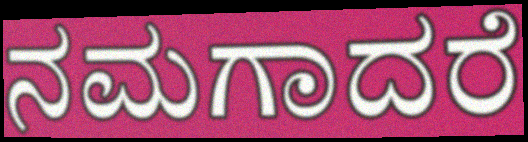
ನಮಗಾದರೆ